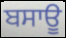
ਬਸਾਊ